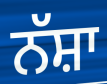
ਨੱਸ਼ਾ